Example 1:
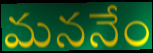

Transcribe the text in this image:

మననేం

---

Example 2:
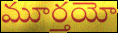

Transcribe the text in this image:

మూర్తయో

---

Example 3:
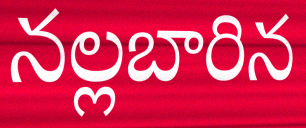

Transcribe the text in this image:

నల్లబారిన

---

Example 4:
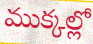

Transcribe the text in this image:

ముక్కల్లో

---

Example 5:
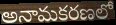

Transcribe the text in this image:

అనామకరణలో